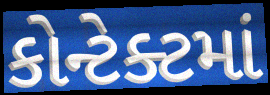
કોન્ટેક્ટમાં